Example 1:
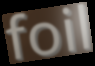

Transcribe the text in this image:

foil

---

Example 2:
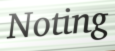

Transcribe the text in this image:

Noting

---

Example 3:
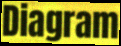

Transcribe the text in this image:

Diagram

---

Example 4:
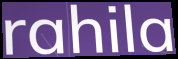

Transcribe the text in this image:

rahila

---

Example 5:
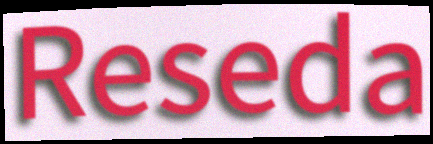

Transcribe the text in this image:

Reseda